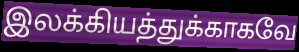
இலக்கியத்துக்காகவே